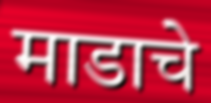
माडाचे